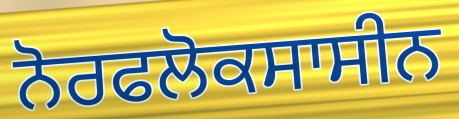
ਨੋਰਫਲੋਕਸਾਸੀਨ